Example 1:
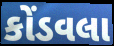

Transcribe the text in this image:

કોંડવલા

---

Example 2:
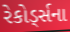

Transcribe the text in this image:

રેકોર્ડ્સના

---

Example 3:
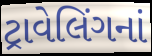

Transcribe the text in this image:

ટ્રાવેલિંગનાં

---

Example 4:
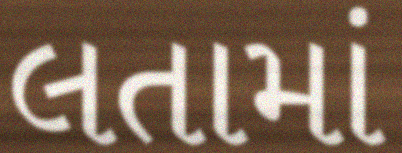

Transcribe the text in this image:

લતામાં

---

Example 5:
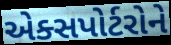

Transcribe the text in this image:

એક્સપોર્ટરોને